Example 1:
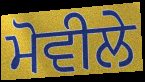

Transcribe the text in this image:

ਮੋਵੀਲੇ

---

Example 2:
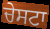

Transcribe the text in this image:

ਚੇਸਟਾ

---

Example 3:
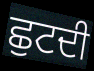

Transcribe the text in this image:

ਛੁਟਦੀ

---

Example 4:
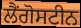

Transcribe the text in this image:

ਲੈਂਗੋਸਟੀਨ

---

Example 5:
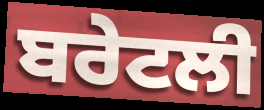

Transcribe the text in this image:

ਬਰੇਟਲੀ